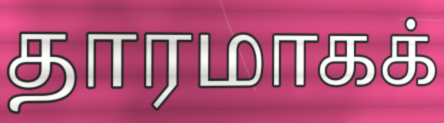
தாரமாகக்